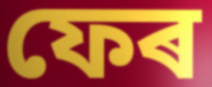
ফেৰ